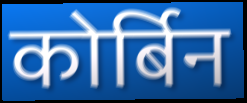
कोर्बिन